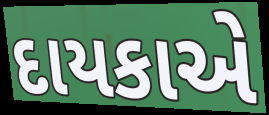
દાયકાએ